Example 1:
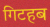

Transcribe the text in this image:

गिटहब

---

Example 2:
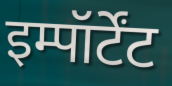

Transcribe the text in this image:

इम्पॉर्टेंट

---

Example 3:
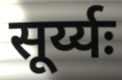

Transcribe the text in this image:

सूर्य्यः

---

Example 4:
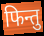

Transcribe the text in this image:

फिन्तु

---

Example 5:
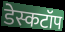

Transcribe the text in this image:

डेस्‍कटॉप